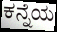
ಕನ್ನೆಯ